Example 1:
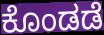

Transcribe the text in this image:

ಕೊಂಡಡೆ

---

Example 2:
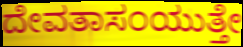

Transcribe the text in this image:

ದೇವತಾಸಂಯುತ್ತೇ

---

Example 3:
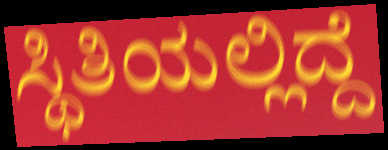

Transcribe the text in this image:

ಸ್ಥಿತಿಯಲ್ಲಿದ್ದೆ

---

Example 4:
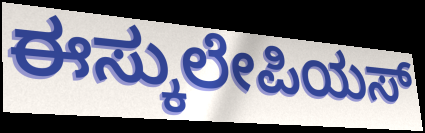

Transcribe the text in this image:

ಈಸ್ಕುಲೇಪಿಯಸ್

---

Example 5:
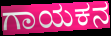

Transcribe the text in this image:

ಗಾಯಕನ